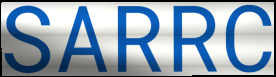
SARRC